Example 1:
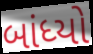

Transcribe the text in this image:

બાંધ્યો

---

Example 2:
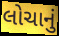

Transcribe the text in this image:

લોચાનું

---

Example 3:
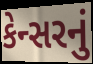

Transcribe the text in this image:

કેન્સરનું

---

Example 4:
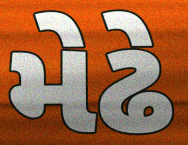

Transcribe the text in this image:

મેઢે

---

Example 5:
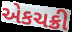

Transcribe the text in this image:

એકચક્રી